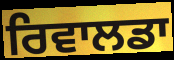
ਰਿਵਾਲਡਾ